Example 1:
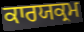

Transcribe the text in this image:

ਕਾਰਯਕ੍ਰਮ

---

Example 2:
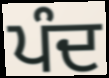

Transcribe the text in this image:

ਪੰਦ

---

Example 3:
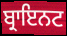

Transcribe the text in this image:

ਬ੍ਰਾਇਨਟ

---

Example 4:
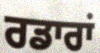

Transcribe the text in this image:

ਰਡਾਰਾਂ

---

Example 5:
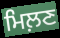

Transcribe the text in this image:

ਮਿਲ਼ਣ